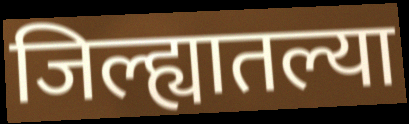
जिल्ह्यातल्या